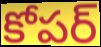
కోపర్